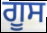
ਗੂਸ